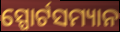
ସ୍ପୋର୍ଟସମ୍ୟାନ